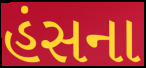
હંસના